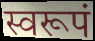
स्वरूपं